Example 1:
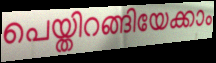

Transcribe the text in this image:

പെയ്തിറങ്ങിയേക്കാം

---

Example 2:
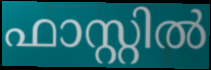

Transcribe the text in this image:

ഫാസ്റ്റിൽ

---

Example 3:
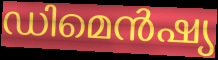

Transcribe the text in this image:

ഡിമെൻഷ്യ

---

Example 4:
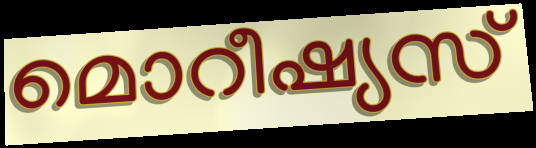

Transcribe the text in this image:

മൊറീഷ്യസ്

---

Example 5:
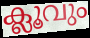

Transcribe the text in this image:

ക്ലൂവും